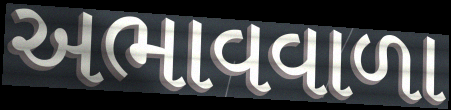
અભાવવાળા